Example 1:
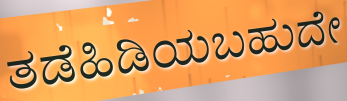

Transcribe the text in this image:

ತಡೆಹಿಡಿಯಬಹುದೇ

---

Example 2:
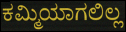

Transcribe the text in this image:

ಕಮ್ಮಿಯಾಗಲಿಲ್ಲ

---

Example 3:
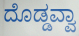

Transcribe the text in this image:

ದೊಡ್ಡವ್ವಾ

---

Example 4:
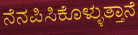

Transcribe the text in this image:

ನೆನಪಿಸಿಕೊಳ್ಳುತ್ತಾನೆ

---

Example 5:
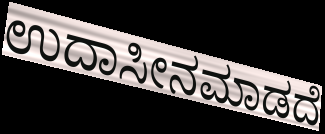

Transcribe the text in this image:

ಉದಾಸೀನಮಾಡದೆ